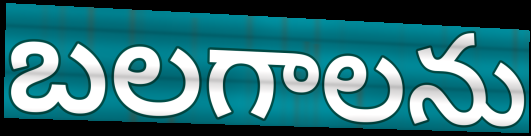
బలగాలను